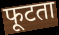
फूटता